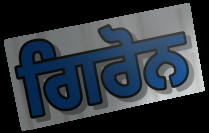
ਗਿਰੋਨ